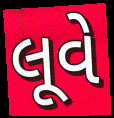
લૂવે